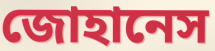
জোহানেস